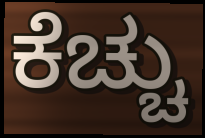
ಕೆಚ್ಚು